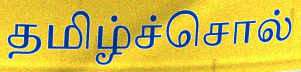
தமிழ்ச்சொல்